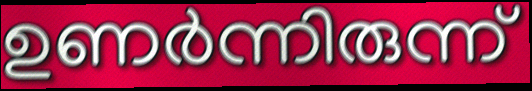
ഉണർന്നിരുന്ന്